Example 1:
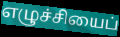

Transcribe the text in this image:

எழுச்சியைப்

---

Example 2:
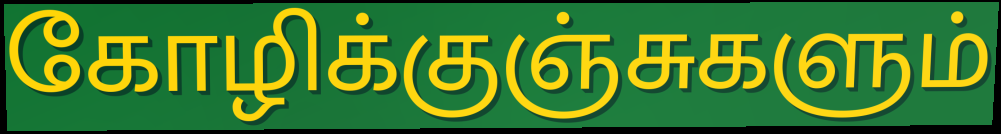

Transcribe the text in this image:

கோழிக்குஞ்சுகளும்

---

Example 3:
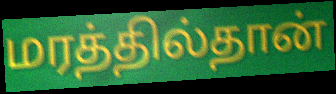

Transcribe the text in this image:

மரத்தில்தான்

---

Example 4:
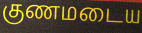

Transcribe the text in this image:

குணமடைய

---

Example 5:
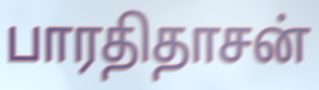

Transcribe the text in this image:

பாரதிதாசன்